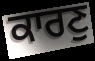
ਕਾਰਣੁ